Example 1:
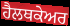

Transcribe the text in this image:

ਹੈਲਥਕੇਅਰ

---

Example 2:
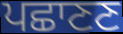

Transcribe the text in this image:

ਪਛਾਣਣ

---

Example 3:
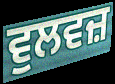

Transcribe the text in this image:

ਵੁਲਵਜ਼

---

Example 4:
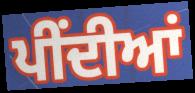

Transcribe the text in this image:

ਪੀਂਦੀਆਂ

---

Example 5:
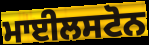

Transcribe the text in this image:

ਮਾਈਲਸਟੋਨ